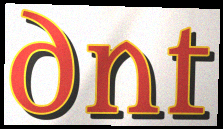
dnt